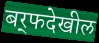
बर्फदेखील